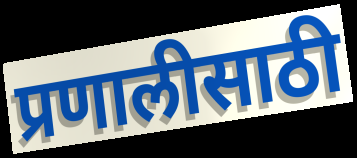
प्रणालीसाठी